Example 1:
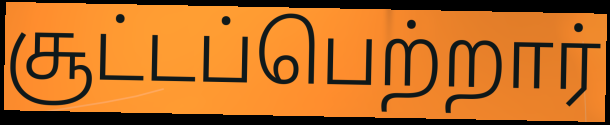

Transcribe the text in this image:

சூட்டப்பெற்றார்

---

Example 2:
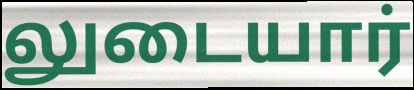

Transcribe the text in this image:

லுடையார்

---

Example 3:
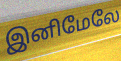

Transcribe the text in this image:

இனிமேலே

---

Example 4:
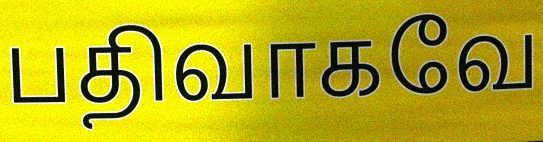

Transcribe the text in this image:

பதிவாகவே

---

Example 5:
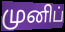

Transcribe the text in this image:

முனிப்